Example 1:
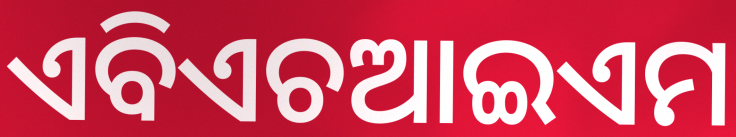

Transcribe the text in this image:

ଏବିଏଚଆଇଏମ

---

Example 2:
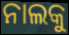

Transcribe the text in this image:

ନାଲକୁ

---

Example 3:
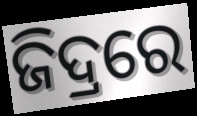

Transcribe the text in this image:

ଜିଦ୍ରରେ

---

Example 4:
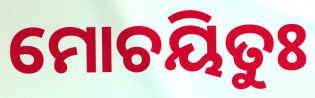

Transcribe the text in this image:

ମୋଚୟିତୁଃ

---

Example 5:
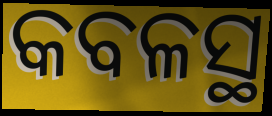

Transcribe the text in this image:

କବଳସ୍ଥ